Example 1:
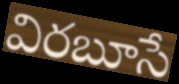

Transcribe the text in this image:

విరబూసే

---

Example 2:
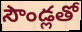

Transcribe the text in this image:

సౌండ్లతో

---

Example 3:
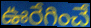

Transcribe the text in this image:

ఊరేగించే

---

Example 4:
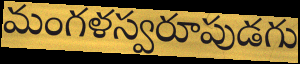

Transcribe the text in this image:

మంగళస్వరూపుడగు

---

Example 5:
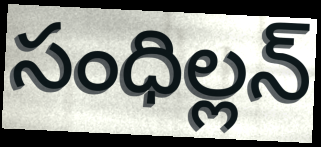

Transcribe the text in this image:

సంధిల్లన్